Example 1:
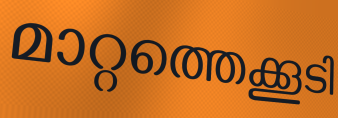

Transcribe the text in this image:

മാറ്റത്തെക്കൂടി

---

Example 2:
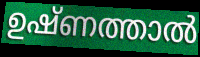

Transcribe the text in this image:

ഉഷ്ണത്താൽ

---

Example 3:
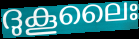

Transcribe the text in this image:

ദുകൂലൈഃ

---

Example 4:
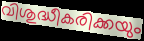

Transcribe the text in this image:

വിശുദ്ധീകരിക്കയും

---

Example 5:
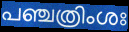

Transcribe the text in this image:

പഞ്ചത്രിംശഃ